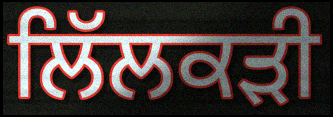
ਲਿੱਲਕੜੀ